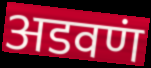
अडवणं